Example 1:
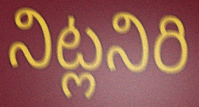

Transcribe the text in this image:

నిట్లనిరి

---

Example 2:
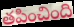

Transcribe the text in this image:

తపించింది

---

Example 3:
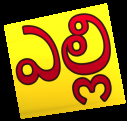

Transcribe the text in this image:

ఎల్లి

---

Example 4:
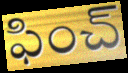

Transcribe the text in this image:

ఫించ్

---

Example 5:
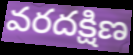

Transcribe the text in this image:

వరదక్షిణ